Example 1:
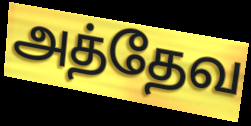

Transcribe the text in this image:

அத்தேவ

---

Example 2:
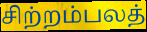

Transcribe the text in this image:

சிற்றம்பலத்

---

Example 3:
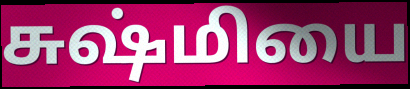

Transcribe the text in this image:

சுஷ்மியை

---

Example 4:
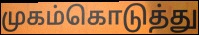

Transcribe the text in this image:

முகம்கொடுத்து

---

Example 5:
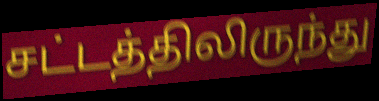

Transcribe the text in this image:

சட்டத்திலிருந்து